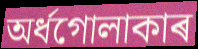
অৰ্ধগোলাকাৰ